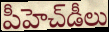
పీహెచ్‌డీలు